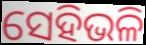
ସେହିଭଳି